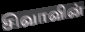
சிவாவின்